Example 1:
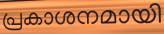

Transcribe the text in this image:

പ്രകാശനമായി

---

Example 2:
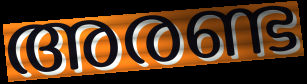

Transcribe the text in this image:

അരണ്ട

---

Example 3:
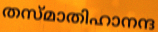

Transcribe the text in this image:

തസ്മാതിഹാനന്ദ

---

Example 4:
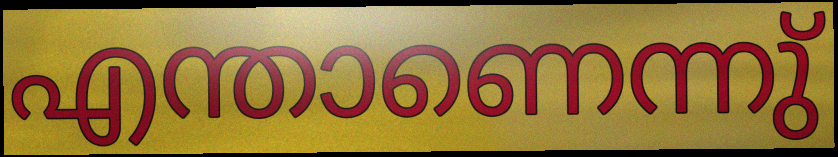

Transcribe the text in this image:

എന്താണെന്നു്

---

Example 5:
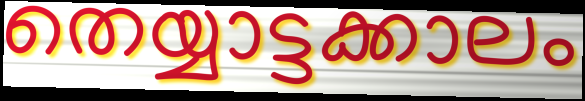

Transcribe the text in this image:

തെയ്യാട്ടക്കാലം